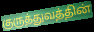
குருத்துவத்தின்